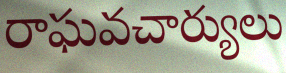
రాఘవచార్యులు